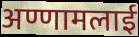
अण्णामलाई